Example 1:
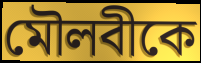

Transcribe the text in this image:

মৌলবীকে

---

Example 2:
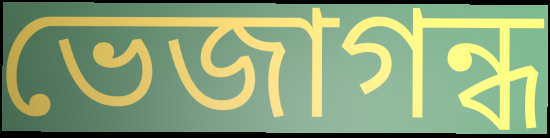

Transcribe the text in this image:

ভেজাগন্ধ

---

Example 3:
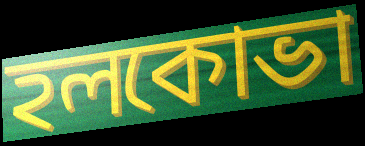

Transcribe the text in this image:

হলকোভা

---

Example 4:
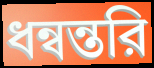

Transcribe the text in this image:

ধন্বন্তরি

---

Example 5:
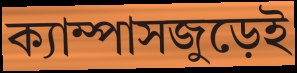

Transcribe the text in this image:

ক্যাম্পাসজুড়েই